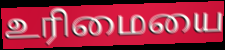
உரிமையை